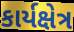
કાર્યક્ષેત્ર